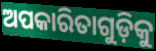
ଅପକାରିତାଗୁଡ଼ିକୁ